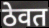
ठेवत